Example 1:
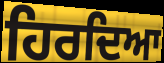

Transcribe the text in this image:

ਹਿਰਦਿਆ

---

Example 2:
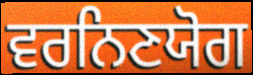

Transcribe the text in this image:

ਵਰਨਿਣਯੋਗ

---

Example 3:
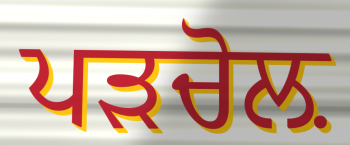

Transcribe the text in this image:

ਪੜਚੋਲ਼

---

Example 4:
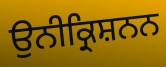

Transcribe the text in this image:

ਉਨੀਕ੍ਰਿਸ਼ਨਨ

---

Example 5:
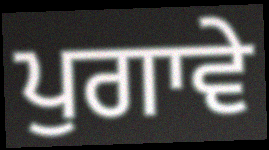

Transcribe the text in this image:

ਪੁਗਾਵੇ